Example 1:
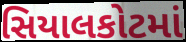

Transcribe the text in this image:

સિયાલકોટમાં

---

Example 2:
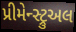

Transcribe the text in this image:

પ્રીમેન્સ્ટ્રુઅલ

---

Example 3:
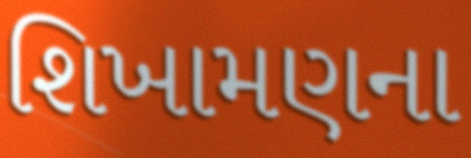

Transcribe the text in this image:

શિખામણના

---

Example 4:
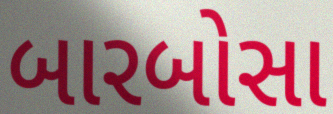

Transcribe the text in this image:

બારબોસા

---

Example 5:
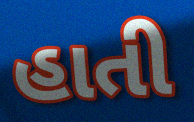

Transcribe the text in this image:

હાતી